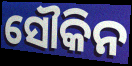
ସୌକିନ